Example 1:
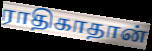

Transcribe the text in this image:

ராதிகாதான்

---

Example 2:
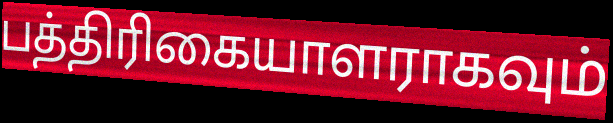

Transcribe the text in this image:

பத்திரிகையாளராகவும்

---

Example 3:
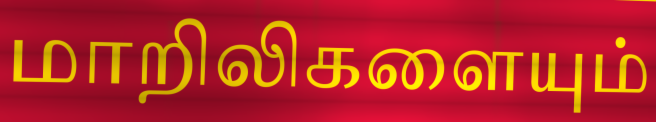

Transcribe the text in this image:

மாறிலிகளையும்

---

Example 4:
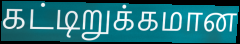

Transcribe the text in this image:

கட்டிறுக்கமான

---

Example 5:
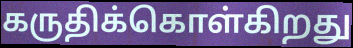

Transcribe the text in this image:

கருதிக்கொள்கிறது